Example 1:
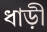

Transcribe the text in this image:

ধাড়ী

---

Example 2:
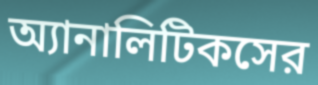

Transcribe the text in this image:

অ্যানালিটিকসের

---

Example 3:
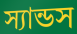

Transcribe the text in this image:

স্যান্ডস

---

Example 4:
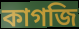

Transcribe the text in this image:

কাগজি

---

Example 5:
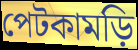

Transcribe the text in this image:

পেটকামড়ি